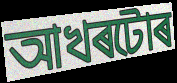
আখৰটোৰ